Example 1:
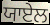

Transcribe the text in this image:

ਯਾਏਲ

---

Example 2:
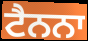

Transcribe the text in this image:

ਟੈਨਨਾ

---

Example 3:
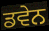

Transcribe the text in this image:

ਡਵੇਨ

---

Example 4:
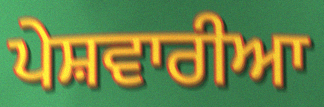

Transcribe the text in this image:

ਪੇਸ਼ਵਾਰੀਆ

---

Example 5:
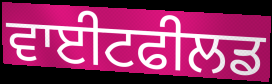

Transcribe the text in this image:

ਵਾਈਟਫੀਲਡ